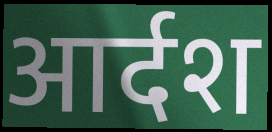
आर्दश